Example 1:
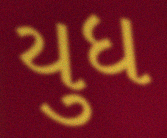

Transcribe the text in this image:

યુધ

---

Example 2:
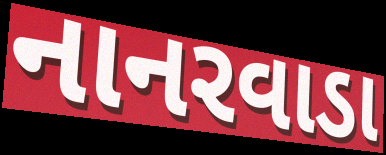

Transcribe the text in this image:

નાનરવાડા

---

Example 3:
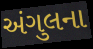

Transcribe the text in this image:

અંગુલના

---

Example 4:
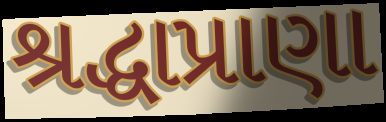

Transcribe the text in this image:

શ્રદ્ધાપ્રાણા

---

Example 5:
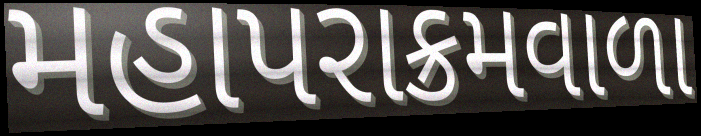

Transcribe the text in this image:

મહાપરાક્રમવાળા